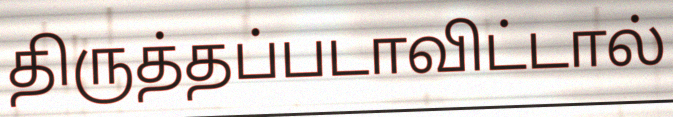
திருத்தப்படாவிட்டால்